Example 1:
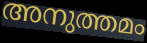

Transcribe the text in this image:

അനുത്തമം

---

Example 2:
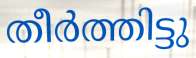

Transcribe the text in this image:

തീർത്തിട്ടു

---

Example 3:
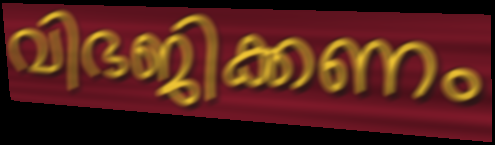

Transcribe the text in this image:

വിഭജിക്കണം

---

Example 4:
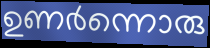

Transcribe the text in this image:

ഉണർന്നൊരു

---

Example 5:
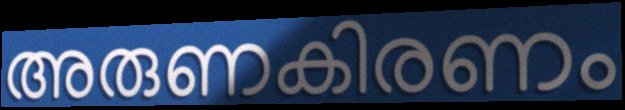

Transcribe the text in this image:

അരുണകിരണം